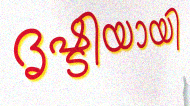
ദൃഷ്ടിയായി